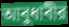
আবুধাবীর